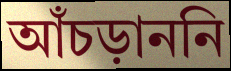
আঁচড়াননি